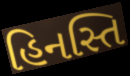
હિનસ્તિ